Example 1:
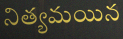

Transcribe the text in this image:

నిత్యమయిన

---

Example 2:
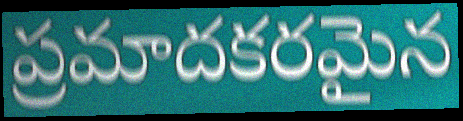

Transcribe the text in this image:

ప్రమాదకరమైన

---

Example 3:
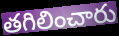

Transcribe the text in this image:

తగిలించారు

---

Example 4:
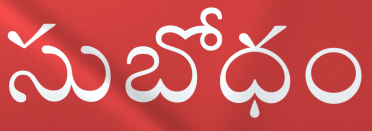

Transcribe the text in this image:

సుబోధం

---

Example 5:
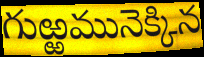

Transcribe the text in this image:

గుఱ్ఱమునెక్కిన